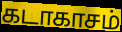
கடாகாசம்